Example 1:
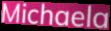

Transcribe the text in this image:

Michaela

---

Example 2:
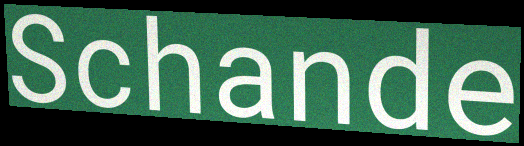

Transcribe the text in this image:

Schande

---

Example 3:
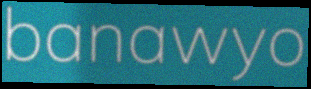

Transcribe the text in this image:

banawyo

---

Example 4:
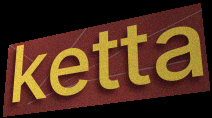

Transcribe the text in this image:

ketta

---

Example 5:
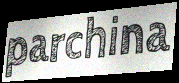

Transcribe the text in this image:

parchina